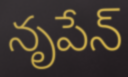
నృపేన్